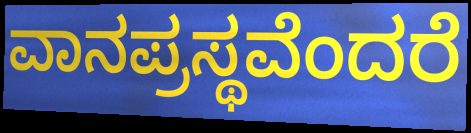
ವಾನಪ್ರಸ್ಥವೆಂದರೆ